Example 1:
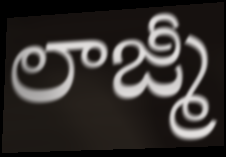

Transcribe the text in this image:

లాజ్మీ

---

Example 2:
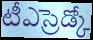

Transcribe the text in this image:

టీఎస్రెడ్కో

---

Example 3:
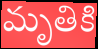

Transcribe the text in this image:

మృతికి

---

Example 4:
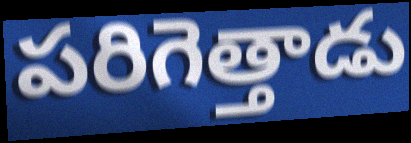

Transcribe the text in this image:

పరిగెత్తాడు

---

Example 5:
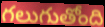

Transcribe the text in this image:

గలుగుతోంది